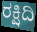
ರಕ್ಷಿದಿ